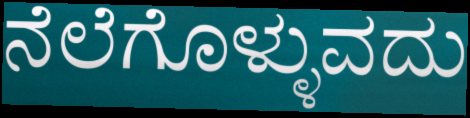
ನೆಲೆಗೊಳ್ಳುವದು